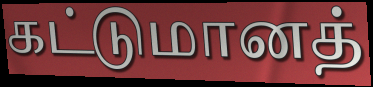
கட்டுமானத்